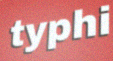
typhi